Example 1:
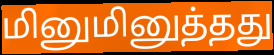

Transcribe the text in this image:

மினுமினுத்தது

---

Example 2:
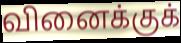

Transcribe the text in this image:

வினைக்குக்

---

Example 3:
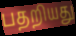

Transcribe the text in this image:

பதறியது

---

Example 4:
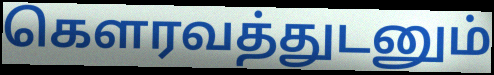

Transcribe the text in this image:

கௌரவத்துடனும்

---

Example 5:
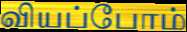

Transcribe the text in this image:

வியப்போம்